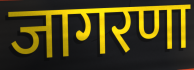
जागरणा